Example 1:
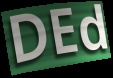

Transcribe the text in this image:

DEd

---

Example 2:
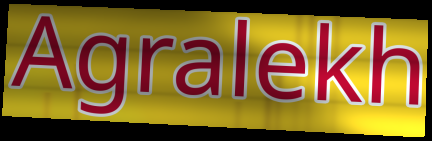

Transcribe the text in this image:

Agralekh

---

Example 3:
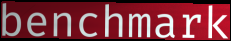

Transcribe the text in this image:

benchmark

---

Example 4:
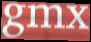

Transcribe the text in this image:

gmx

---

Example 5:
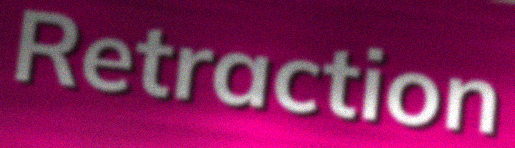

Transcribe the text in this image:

Retraction